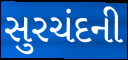
સુરચંદની